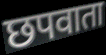
छपवाता